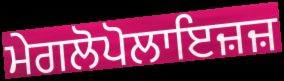
ਮੇਗਲੋਪੋਲਾਇਜ਼ਜ਼